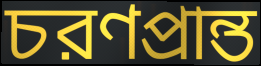
চরণপ্রান্ত